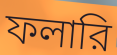
ফলারি